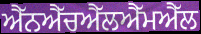
ਐੱਨਐੱਚਐੱਲਐੱਮਐੱਲ